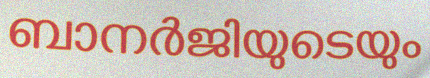
ബാനർജിയുടെയും